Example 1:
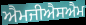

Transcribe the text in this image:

ਐਮਜੀਐਸਐਮ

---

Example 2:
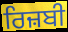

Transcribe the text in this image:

ਰਿਜ਼ਬੀ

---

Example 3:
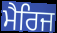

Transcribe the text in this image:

ਮੈਰਿਜ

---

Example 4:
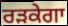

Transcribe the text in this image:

ਰੜਕੇਗਾ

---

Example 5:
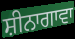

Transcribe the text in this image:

ਸ਼ੀਨਾਗਾਵਾ